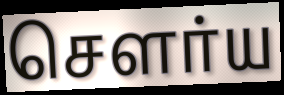
சௌர்ய